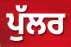
ਪੁੱਲਰ